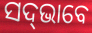
ସଦ୍‌ଭାବେ